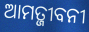
ଆମତ୍ଜୀବନୀ